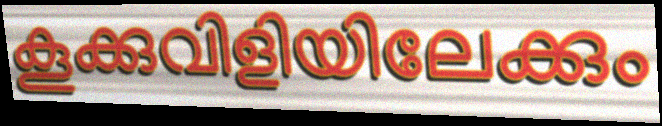
കൂക്കുവിളിയിലേക്കും